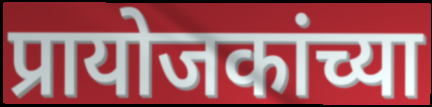
प्रायोजकांच्या